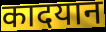
कादयान